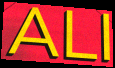
ALI